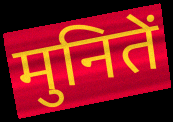
मुनितें